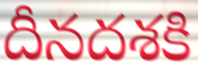
దీనదశకి